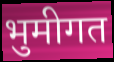
भुमीगत